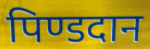
पिण्डदान